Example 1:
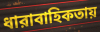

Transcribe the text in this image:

ধারাবাহিকতায়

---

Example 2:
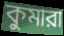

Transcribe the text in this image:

কুমারা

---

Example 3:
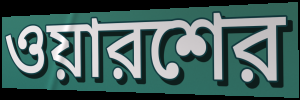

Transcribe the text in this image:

ওয়ারশের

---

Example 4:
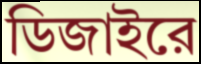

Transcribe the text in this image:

ডিজাইরে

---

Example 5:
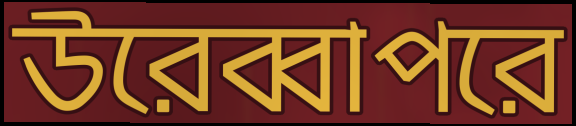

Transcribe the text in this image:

উরেব্বাপরে